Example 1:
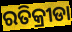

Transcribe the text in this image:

ରତିକ୍ରୀଡା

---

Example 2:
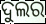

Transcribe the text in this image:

ଦୁଲର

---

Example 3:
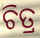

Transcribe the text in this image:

ଚିତ୍ର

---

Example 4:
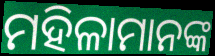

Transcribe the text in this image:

ମହିଳାମାନଙ୍କ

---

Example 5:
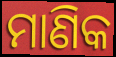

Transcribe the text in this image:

ମାଣିକ